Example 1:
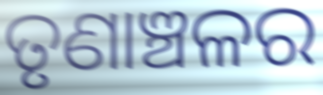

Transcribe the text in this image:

ତୃଣାଞ୍ଚଳର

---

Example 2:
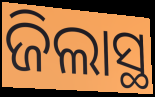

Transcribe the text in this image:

ଜିଲାସ୍ଥ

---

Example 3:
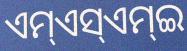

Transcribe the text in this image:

ଏମ୍ଏସ୍ଏମ୍ଇ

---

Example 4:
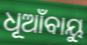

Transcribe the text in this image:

ଧୂଆଁବାୟୁ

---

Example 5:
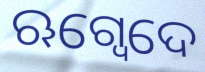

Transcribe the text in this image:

ଋଗ୍ଵେଦେ